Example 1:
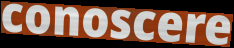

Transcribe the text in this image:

conoscere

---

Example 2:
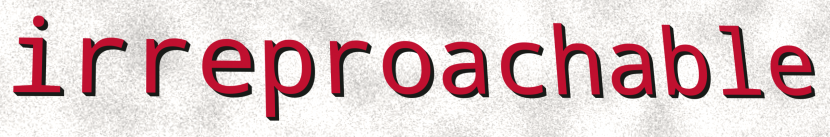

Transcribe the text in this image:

irreproachable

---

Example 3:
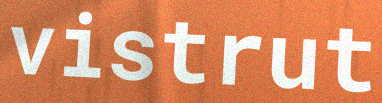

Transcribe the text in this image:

vistrut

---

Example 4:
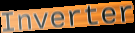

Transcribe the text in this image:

Inverter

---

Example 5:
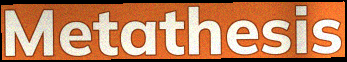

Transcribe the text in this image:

Metathesis